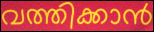
വത്തിക്കാൻ